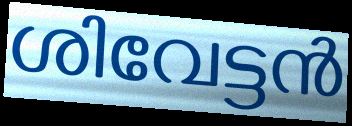
ശിവേട്ടൻ